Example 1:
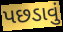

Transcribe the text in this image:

પછડાવું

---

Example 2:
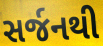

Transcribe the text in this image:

સર્જનથી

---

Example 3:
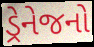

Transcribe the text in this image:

ડ્રેનેજનો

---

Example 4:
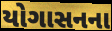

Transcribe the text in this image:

યોગાસનના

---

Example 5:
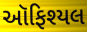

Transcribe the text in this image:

ઑફિશ્યલ